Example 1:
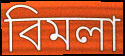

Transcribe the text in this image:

বিমলা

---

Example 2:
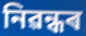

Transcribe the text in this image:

নিৱন্ধৰ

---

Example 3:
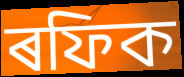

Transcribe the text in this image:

ৰফিক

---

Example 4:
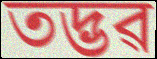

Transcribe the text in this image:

তদ্ভৱ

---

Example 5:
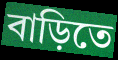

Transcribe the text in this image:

বাড়িতে